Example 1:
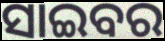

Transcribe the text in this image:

ସାଇବର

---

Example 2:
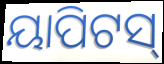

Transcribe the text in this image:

ୟାପିଟସ୍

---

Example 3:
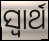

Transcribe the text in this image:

ସ୍ୱାର୍ଥ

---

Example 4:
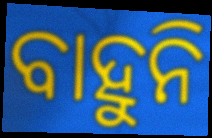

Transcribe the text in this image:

ବାହୁନି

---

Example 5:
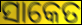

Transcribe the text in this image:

ସାକେତ